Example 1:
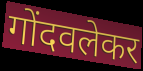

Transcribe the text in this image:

गोंदवलेकर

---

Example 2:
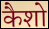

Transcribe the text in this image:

कैशो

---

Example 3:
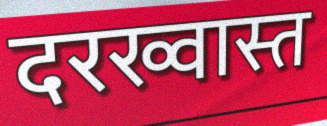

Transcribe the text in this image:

दरख्वास्त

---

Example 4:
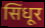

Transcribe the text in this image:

सिंधूर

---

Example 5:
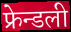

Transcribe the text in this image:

फ्रेन्डली